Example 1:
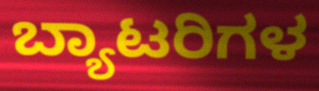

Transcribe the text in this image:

ಬ್ಯಾಟರಿಗಳ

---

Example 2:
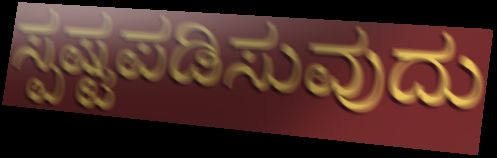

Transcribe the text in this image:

ಸ್ಪಷ್ಟಪಡಿಸುವುದು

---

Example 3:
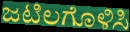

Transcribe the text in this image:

ಜಟಿಲಗೊಳಿಸಿ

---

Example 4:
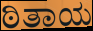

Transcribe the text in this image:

ಠಿತಾಯ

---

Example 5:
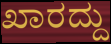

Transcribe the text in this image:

ಖಾರದ್ದು